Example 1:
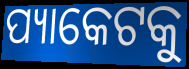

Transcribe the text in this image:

ପ୍ୟାକେଟକୁ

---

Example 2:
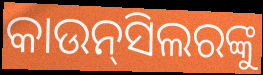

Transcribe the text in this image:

କାଉନ୍‌ସିଲରଙ୍କୁ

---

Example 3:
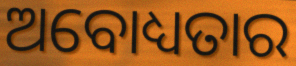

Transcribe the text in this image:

ଅବୋଧ୍ୟତାର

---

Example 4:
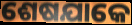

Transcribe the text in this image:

ଶେଷଯାକେ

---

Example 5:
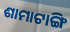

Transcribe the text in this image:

ଶାମାଟାଙ୍ଗି